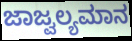
ಜಾಜ್ವಲ್ಯಮಾನ